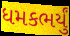
ધમકભર્યું